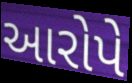
આરોપે